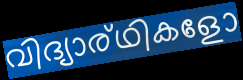
വിദ്യാര്ഥികളോ